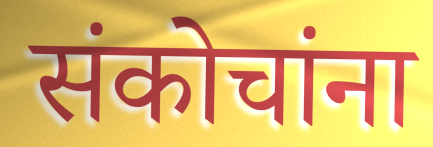
संकोचांना